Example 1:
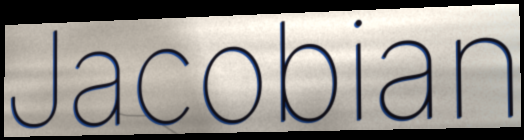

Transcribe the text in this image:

Jacobian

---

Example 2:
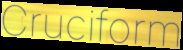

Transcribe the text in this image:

Cruciform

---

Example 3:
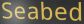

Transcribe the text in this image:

Seabed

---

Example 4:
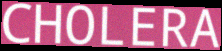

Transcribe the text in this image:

CHOLERA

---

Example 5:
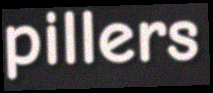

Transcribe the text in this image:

pillers